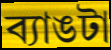
ব্যাঙটা